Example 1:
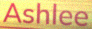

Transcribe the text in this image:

Ashlee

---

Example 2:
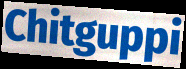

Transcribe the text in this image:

Chitguppi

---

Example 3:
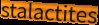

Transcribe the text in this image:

stalactites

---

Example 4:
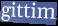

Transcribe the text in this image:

gittim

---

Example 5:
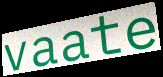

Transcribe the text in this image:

vaate